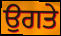
ਉਗਤੇ